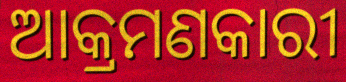
ଆକ୍ରମଣକାରୀ